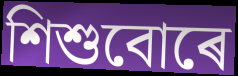
শিশুবোৰে